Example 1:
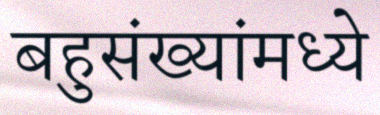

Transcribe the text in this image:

बहुसंख्यांमध्ये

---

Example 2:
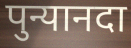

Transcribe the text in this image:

पुन्यानदा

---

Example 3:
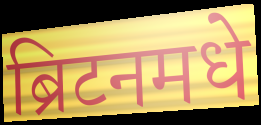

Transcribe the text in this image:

ब्रिटनमधे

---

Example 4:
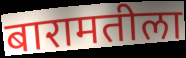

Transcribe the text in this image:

बारामतीला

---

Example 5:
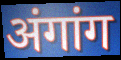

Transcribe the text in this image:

अंगांग